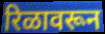
रिळावरून